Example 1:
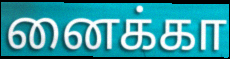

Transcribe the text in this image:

னைக்கா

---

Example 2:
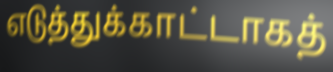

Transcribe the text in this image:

எடுத்துக்காட்டாகத்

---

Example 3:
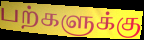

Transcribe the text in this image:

பற்களுக்கு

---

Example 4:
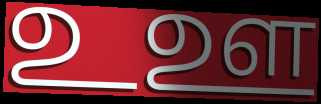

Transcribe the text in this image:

உஊ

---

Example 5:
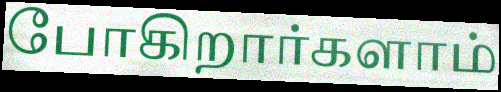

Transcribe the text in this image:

போகிறார்களாம்